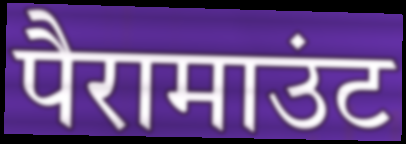
पैरामाउंट